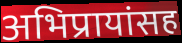
अभिप्रायांसह